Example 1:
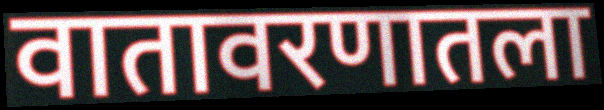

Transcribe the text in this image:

वातावरणातला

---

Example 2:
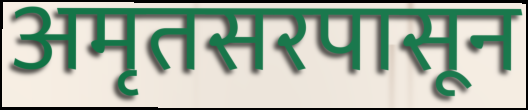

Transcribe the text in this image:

अमृतसरपासून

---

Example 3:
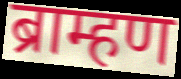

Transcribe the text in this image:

ब्राम्हण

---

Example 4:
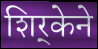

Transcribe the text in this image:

शिर्केने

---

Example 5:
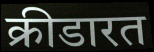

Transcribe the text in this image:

क्रीडारत